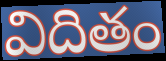
విదితం